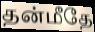
தன்மீதே